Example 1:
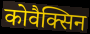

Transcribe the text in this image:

कोवैक्सिन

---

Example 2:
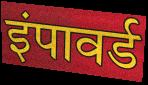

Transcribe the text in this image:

इंपावर्ड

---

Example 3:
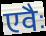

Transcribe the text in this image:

एवैः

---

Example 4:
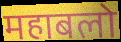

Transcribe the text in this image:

महाबलो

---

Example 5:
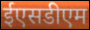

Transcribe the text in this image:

ईएसडीएम